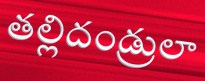
తల్లిదండ్రులా